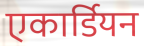
एकार्डियन